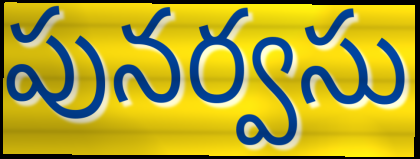
పునర్వసు